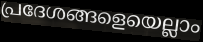
പ്രദേശങ്ങളെയെല്ലാം